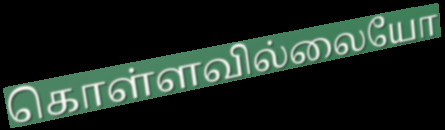
கொள்ளவில்லையோ